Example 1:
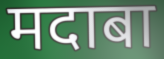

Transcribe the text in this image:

मदाबा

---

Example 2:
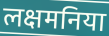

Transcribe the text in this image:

लक्षमनिया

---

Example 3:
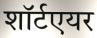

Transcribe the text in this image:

शॉर्टएयर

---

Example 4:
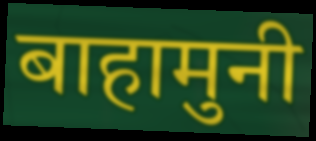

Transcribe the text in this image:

बाहामुनी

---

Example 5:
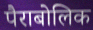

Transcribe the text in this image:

पैराबोलिक